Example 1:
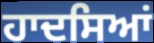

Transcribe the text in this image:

ਹਾਦਸਿਆਂ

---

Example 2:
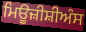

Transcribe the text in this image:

ਮਿਊਜ਼ੀਸ਼ੀਅੰਸ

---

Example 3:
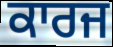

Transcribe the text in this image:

ਕਾਰਜ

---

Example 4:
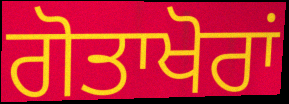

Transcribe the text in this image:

ਗੋਤਾਖੋਰਾਂ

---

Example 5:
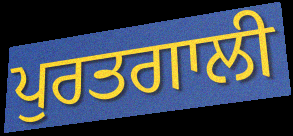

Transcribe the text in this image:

ਪੁਰਤਗਾਲੀ